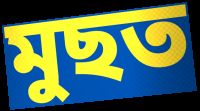
মুছত